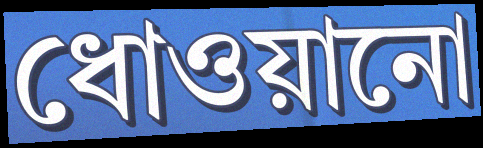
ধোওয়ানো